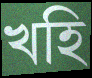
খহি